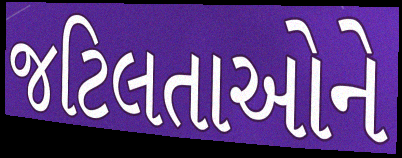
જટિલતાઓને